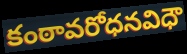
కంఠావరోధనవిధౌ